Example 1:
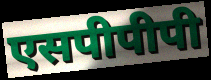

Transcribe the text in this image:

एसपीपीपी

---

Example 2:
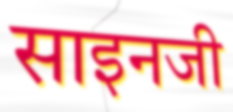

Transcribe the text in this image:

साइनजी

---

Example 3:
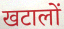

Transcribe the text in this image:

खटालों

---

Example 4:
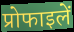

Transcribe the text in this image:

प्रोफाइलें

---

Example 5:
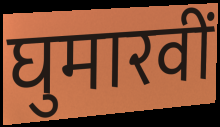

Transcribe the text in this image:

घुमारवीं